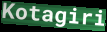
Kotagiri